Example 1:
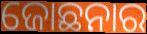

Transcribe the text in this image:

ଜୋଛନାର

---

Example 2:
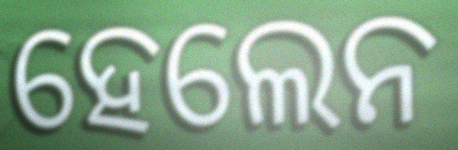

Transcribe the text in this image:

ହେଲେନ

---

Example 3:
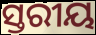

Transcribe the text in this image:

ସ୍ତରୀୟ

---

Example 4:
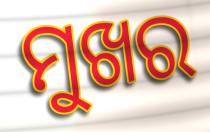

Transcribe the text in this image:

ମୁଖର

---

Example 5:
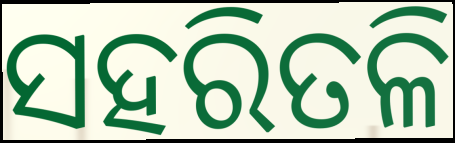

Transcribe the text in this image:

ସହରିତଳି